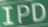
IPD